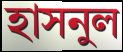
হাসনুল